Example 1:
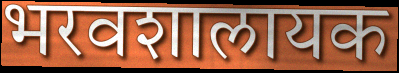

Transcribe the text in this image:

भरवशालायक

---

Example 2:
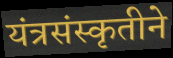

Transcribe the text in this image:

यंत्रसंस्कृतीने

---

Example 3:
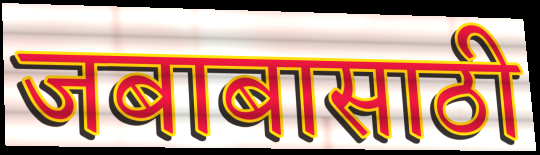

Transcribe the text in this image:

जबाबासाठी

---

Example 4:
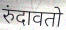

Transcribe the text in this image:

रुंदावतो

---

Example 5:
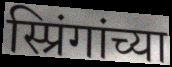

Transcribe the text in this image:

स्प्रिंगांच्या